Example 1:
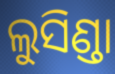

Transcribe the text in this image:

ଲୁସିଣ୍ଡା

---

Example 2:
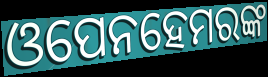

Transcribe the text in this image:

ଓପେନହେମରଙ୍କ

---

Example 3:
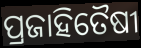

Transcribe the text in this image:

ପ୍ରଜାହିତୈଷୀ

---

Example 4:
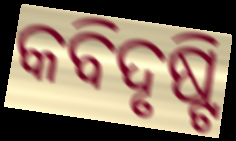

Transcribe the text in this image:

କବିଦୃଷ୍ଟି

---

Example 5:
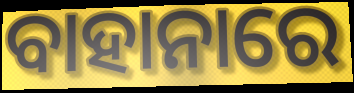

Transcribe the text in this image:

ବାହାନାରେ